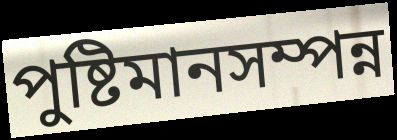
পুষ্টিমানসম্পন্ন